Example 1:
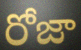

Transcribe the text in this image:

రోజా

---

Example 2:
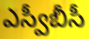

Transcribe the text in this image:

ఎస్వీబీసీ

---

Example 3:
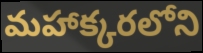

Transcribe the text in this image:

మహాక్కరలోని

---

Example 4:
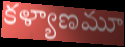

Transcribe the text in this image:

కళ్యాణమూ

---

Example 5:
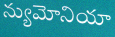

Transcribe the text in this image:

న్యుమోనియా